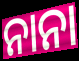
ନାନା